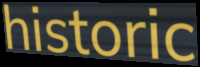
historic